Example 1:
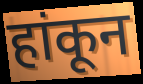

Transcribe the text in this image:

हांकून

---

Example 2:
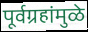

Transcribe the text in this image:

पूर्वग्रहांमुळे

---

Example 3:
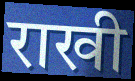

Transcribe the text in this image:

राखी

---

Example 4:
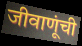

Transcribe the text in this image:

जीवाणूंची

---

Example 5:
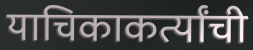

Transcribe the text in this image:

याचिकाकर्त्यांची